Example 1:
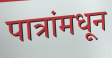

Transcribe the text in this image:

पात्रांमधून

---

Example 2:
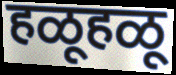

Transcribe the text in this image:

हळूहळू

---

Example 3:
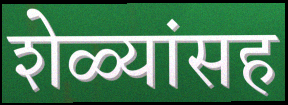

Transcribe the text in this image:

शेळ्यांसह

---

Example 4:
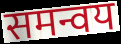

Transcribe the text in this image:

समन्वय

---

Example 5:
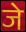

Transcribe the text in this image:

जे